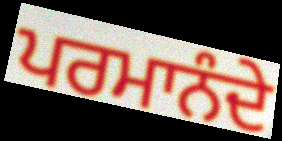
ਪਰਮਾਨੰਦੇ